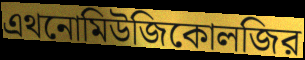
এথনোমিউজিকোলজির